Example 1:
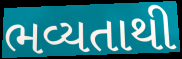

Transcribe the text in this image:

ભવ્યતાથી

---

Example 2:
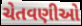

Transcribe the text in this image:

ચેતવણીઓ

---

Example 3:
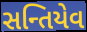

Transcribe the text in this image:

સન્તિયેવ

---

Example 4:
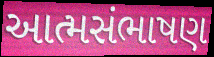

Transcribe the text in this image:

આત્મસંભાષણ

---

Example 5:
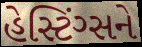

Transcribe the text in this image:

હેસ્ટિંગ્સને